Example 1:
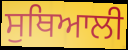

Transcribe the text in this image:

ਸੁਥਿਆਲੀ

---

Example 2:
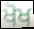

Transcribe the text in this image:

ਖੋਖ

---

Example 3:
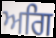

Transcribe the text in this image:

ਅਗਿ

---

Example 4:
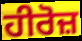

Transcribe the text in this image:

ਹੀਰੋਜ਼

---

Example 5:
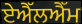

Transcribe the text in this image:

ਏਐੱਲਐੱਮ